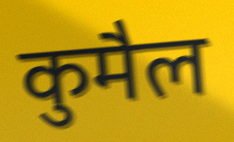
कुमैल